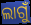
ଲାଗୁଁ